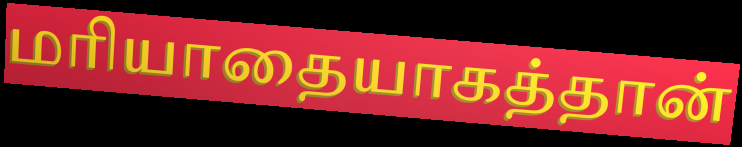
மரியாதையாகத்தான்